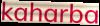
kaharba